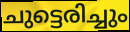
ചുട്ടെരിച്ചും